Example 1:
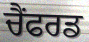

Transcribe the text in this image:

ਚੈਂਫਰਡ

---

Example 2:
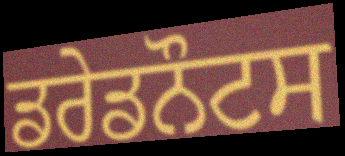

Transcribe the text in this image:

ਡਰੇਡਨੌਟਸ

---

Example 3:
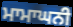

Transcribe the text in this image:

ਮਾਮਾਘਨੀ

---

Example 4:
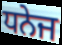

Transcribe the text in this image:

ਧਨੇਜ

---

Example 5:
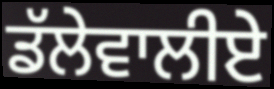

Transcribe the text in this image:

ਡੱਲੇਵਾਲੀਏ